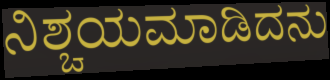
ನಿಶ್ಚಯಮಾಡಿದನು